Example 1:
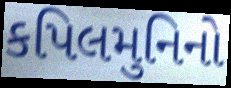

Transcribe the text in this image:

કપિલમુનિનો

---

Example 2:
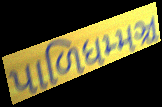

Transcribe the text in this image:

પાળિધમ્મઞ્ચ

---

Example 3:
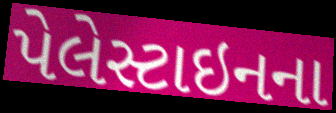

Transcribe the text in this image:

પેલેસ્ટાઇનના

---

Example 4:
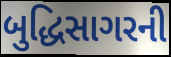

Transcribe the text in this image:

બુદ્ધિસાગરની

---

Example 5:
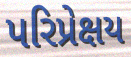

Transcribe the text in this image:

પરિપ્રેક્ષય